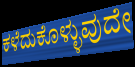
ಕಳೆದುಕೊಳ್ಳುವುದೇ